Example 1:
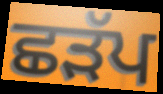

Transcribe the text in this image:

ਛੜੱਪ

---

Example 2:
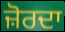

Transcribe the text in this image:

ਜ਼ੋਰਦਾ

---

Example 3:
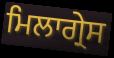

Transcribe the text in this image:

ਮਿਲਾਗ੍ਰੇਸ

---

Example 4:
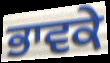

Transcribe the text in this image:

ਭਾਵਕੇ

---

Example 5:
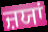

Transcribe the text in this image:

ਜ਼ਯਾਂ